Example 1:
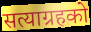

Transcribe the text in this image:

सत्याग्रहको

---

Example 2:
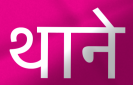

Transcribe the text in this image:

थाने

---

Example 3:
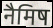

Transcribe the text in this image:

नैमिष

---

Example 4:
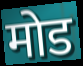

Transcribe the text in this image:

मोड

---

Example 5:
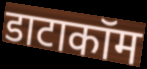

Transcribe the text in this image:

डाटाकॉम